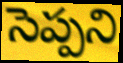
సెప్పని